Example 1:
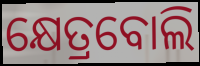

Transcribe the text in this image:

କ୍ଷେତ୍ରବୋଲି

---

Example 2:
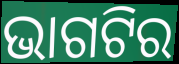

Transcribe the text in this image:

ଭାଗଟିର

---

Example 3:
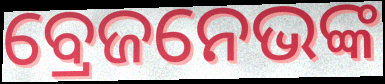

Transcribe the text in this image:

ବ୍ରେଜନେଭଙ୍କ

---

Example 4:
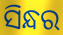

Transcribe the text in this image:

ସିନ୍ଧର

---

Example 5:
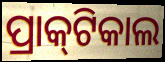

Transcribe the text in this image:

ପ୍ରାକ୍‌ଟିକାଲ